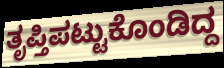
ತೃಪ್ತಿಪಟ್ಟುಕೊಂಡಿದ್ದ